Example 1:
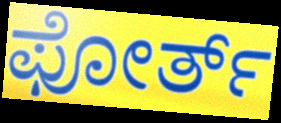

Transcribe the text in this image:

ಫೋರ್ತ್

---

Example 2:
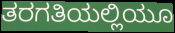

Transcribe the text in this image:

ತರಗತಿಯಲ್ಲಿಯೂ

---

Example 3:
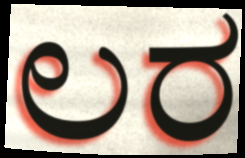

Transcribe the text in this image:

ಲರ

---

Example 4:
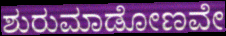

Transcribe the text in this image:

ಶುರುಮಾಡೋಣವೇ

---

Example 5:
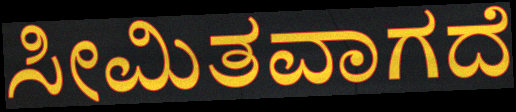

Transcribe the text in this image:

ಸೀಮಿತವಾಗದೆ